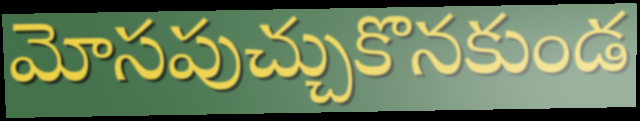
మోసపుచ్చుకొనకుండ